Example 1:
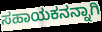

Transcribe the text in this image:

ಸಹಾಯಕನನ್ನಾಗಿ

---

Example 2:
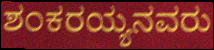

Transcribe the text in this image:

ಶಂಕರಯ್ಯನವರು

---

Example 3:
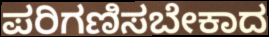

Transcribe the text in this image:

ಪರಿಗಣಿಸಬೇಕಾದ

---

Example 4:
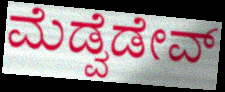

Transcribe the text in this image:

ಮೆಡ್ವೆಡೇವ್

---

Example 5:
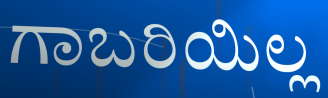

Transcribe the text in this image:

ಗಾಬರಿಯಿಲ್ಲ